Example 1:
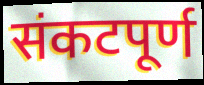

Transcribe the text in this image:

संकटपूर्ण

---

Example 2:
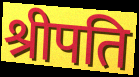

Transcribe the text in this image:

श्रीपति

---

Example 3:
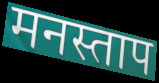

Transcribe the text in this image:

मनस्ताप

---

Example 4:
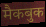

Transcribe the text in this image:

मैकबुक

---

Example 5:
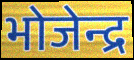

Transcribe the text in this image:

भोजेन्द्र